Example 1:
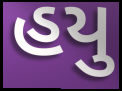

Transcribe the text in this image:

હયુ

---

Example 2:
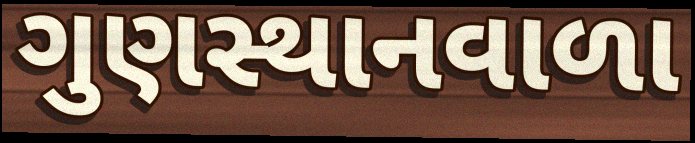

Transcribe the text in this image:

ગુણસ્થાનવાળા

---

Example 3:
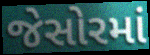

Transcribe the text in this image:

જેસોરમાં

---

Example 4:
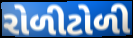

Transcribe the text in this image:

રોળીટોળી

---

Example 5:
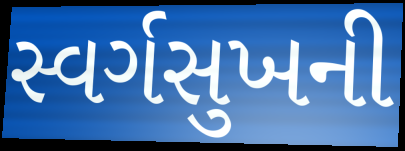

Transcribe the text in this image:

સ્વર્ગસુખની